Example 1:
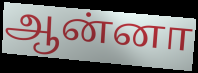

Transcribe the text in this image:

ஆன்னா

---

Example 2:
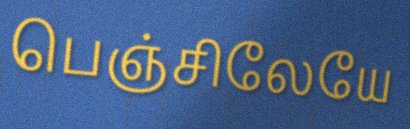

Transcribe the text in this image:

பெஞ்சிலேயே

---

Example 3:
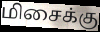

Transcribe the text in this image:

மிசைக்கு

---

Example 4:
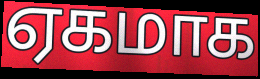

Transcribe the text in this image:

ஏகமாக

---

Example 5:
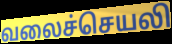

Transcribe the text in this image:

வலைச்செயலி